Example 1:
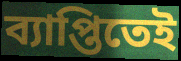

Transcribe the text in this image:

ব্যাপ্তিতেই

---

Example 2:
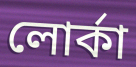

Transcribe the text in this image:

লোর্কা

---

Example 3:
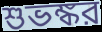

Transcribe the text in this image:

শুভঙ্কর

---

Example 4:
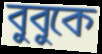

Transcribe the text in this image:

বুবুকে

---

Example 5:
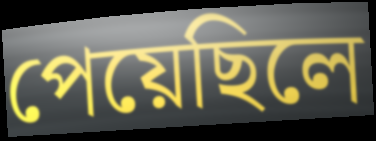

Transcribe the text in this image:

পেয়েছিলে